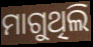
ମାଗୁଥିଲି